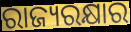
ରାଜ୍ୟରକ୍ଷାର